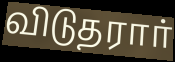
விடுதரார்